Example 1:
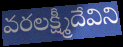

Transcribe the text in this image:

వరలక్ష్మీదేవిని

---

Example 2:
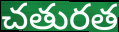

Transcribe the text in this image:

చతురత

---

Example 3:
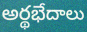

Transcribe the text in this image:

అర్థభేదాలు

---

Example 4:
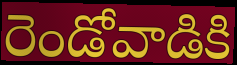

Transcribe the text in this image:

రెండోవాడికి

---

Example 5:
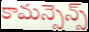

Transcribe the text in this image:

కామన్సెన్స్